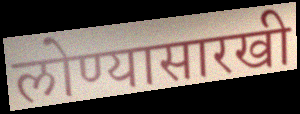
लोण्यासारखी